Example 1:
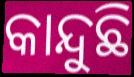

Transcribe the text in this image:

କାନ୍ଦୁଛି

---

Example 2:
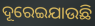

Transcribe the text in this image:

ଦୂରେଇଯାଉଛି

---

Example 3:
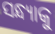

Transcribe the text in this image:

ସନ୍ଧ୍ୟାକୁ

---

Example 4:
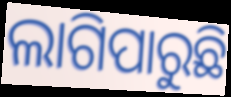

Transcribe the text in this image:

ଲାଗିପାରୁଛି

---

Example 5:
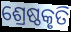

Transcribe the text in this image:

ଶ୍ରେଷ୍ଠକୃତି